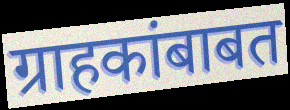
ग्राहकांबाबत